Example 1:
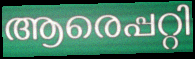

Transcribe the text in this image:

ആരെപ്പറ്റി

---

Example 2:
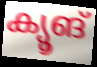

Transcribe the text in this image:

ക്യൂങ്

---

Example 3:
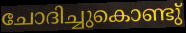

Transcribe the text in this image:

ചോദിച്ചുകൊണ്ടു്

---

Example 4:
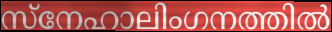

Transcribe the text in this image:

സ്നേഹാലിംഗനത്തിൽ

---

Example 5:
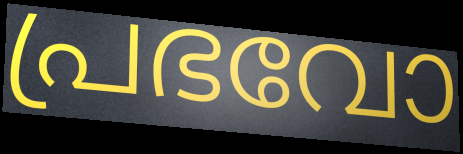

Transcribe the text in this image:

പ്രഭവോ